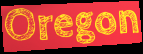
Oregon